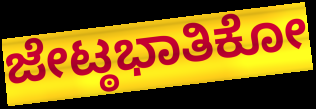
ಜೇಟ್ಠಭಾತಿಕೋ